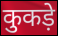
कुकड़े